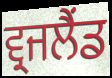
ਵ੍ਰਜਲੈਂਡ